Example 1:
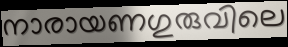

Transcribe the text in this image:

നാരായണഗുരുവിലെ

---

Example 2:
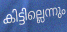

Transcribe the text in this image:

കിട്ടില്ലെന്നും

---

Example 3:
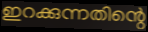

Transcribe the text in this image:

ഇറക്കുന്നതിന്റെ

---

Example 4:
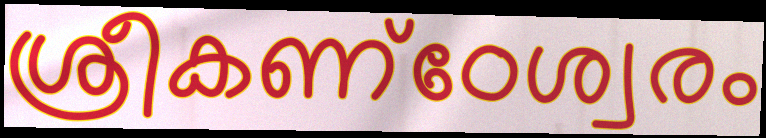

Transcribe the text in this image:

ശ്രീകണ്‌ഠേശ്വരം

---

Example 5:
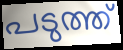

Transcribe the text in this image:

പടുത്ത്